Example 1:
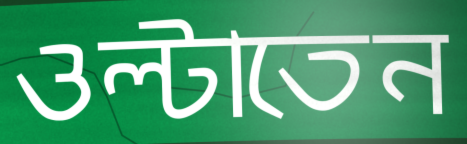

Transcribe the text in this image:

ওল্টাতেন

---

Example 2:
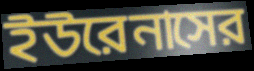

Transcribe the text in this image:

ইউরেনাসের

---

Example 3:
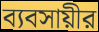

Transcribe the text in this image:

ব্যবসায়ীর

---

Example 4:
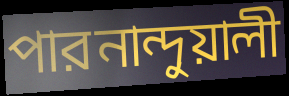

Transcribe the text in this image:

পারনান্দুয়ালী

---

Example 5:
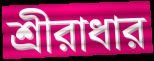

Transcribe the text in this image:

শ্রীরাধার